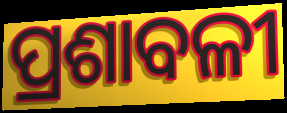
ପ୍ରଶାବଳୀ